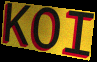
KOI